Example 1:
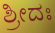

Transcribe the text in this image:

ಶ್ರೀದಃ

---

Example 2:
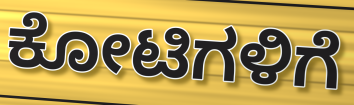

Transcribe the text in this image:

ಕೋಟಿಗಳಿಗೆ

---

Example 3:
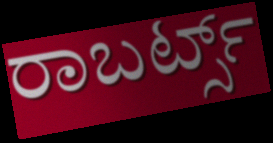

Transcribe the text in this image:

ರಾಬರ್ಟ್ಸ್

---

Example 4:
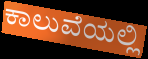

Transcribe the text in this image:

ಕಾಲುವೆಯಲ್ಲಿ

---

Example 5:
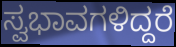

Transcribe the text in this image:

ಸ್ವಭಾವಗಳಿದ್ದರೆ